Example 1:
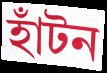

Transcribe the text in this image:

হাঁটন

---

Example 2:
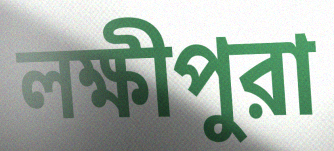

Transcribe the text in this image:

লক্ষীপুরা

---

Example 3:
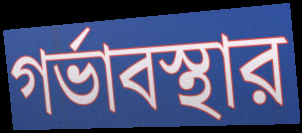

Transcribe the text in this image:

গর্ভাবস্থার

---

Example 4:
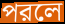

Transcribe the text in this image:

পরলে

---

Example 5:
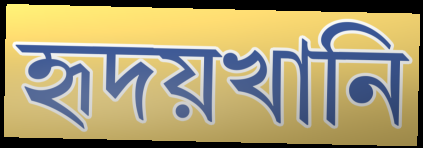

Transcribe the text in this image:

হৃদয়খানি